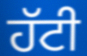
ਹੱਟੀ